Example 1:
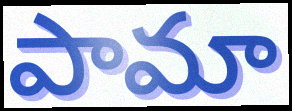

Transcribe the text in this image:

పామా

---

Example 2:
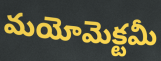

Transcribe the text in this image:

మయోమెక్టమీ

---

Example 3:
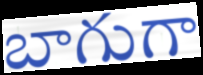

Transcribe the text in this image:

బాగుగా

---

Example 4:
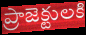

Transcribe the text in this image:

ప్రాజెక్టులకి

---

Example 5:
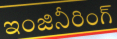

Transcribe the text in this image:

ఇంజినీరింగ్